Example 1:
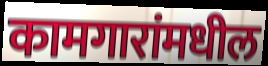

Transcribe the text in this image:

कामगारांमधील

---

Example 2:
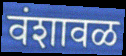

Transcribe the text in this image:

वंशावळ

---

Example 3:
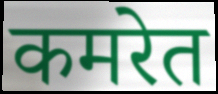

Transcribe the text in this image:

कमरेत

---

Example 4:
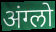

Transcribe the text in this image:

अंग्लो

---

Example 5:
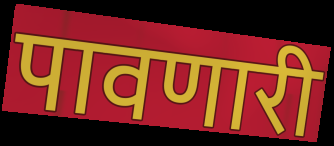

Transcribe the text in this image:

पावणारी